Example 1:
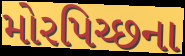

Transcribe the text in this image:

મોરપિચ્છના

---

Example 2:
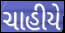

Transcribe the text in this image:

ચાહીયે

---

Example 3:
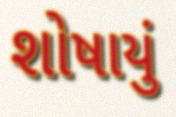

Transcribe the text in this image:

શોષાયું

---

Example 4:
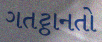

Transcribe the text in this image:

ગતટ્ઠાનતો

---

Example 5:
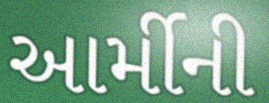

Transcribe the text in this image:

આર્મીની